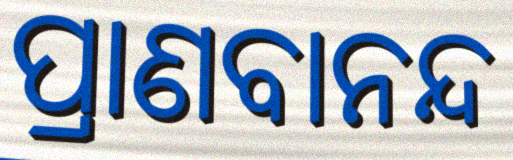
ପ୍ରାଣବାନନ୍ଦ